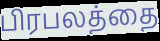
பிரபலத்தை